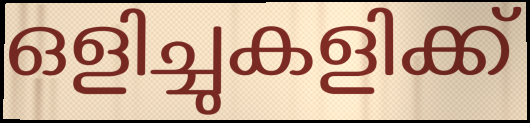
ഒളിച്ചുകളിക്ക്